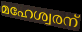
മഹേശ്വരന്